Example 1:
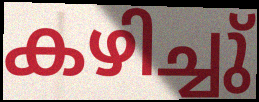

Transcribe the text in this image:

കഴിച്ചു്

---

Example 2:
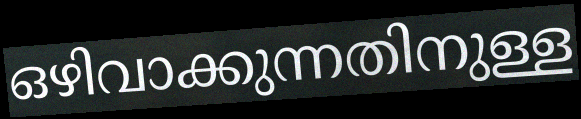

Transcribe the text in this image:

ഒഴിവാക്കുന്നതിനുള്ള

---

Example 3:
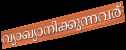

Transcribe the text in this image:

വ്യാഖ്യാനിക്കുന്നവര്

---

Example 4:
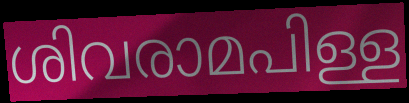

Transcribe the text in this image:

ശിവരാമപിള്ള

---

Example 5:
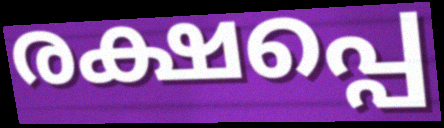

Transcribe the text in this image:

രക്ഷപ്പെ